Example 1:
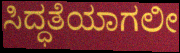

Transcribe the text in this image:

ಸಿದ್ಧತೆಯಾಗಲೀ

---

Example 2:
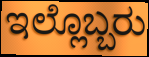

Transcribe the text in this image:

ಇಲ್ಲೊಬ್ಬರು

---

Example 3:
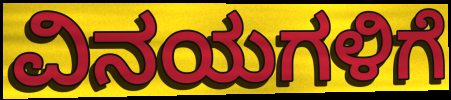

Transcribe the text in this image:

ವಿನಯಗಳಿಗೆ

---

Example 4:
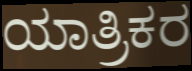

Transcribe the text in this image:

ಯಾತ್ರಿಕರ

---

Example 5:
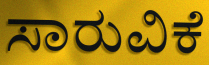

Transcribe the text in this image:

ಸಾರುವಿಕೆ